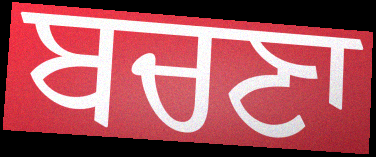
ਬਚਣਾ